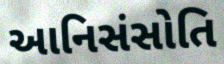
આનિસંસોતિ